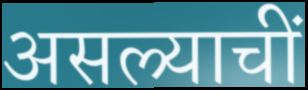
असल्याचीं